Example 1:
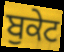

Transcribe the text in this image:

ਬੁਕੇਟ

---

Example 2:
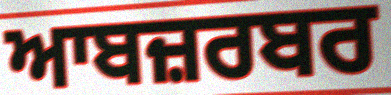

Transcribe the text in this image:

ਆਬਜ਼ਰਬਰ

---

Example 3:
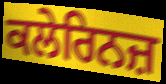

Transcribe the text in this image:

ਕਲੇਰਿਨਜ਼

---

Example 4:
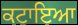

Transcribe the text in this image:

ਕਟਾਇਆ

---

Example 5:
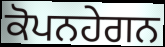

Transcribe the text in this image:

ਕੋਪਨਹੇਗਨ